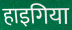
हाइगिया